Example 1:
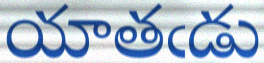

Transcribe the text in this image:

యాతఁడు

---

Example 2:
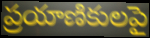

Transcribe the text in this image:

ప్రయాణికులపై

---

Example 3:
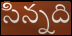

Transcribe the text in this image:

సిన్నది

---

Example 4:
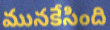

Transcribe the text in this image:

మునకేసింది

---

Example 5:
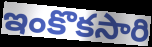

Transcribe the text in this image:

ఇంకొకసారి